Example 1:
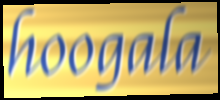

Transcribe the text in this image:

hoogala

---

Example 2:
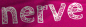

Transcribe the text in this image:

nerve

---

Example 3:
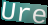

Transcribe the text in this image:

Ure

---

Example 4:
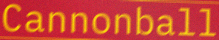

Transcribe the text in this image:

Cannonball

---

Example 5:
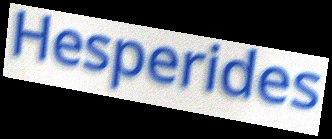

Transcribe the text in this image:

Hesperides